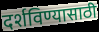
दर्शविण्यासाठी